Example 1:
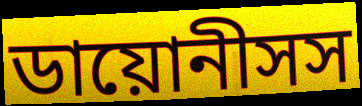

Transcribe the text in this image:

ডায়োনীসস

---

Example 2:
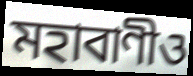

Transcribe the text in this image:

মহাবাণীও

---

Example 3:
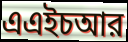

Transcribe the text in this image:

এএইচআর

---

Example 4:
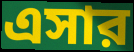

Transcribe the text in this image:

এসার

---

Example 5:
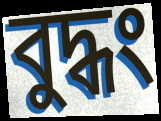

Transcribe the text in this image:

বুদ্ধং